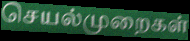
செயல்முறைகள்